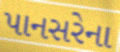
પાનસરેના